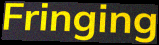
Fringing